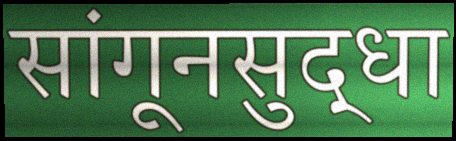
सांगूनसुद्धा